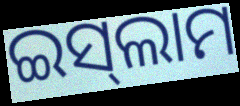
ଇସ୍‌ଲାମ